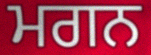
ਮਗਨ